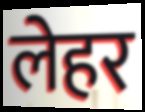
लेहर